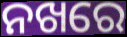
ନଖରେ